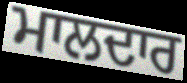
ਮਾਲਦਾਰ